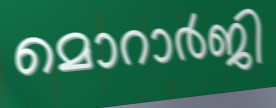
മൊറാർജി